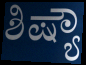
ಶಿಷ್ಯೌ